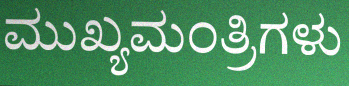
ಮುಖ್ಯಮಂತ್ರಿಗಳು